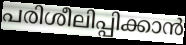
പരിശീലിപ്പിക്കാൻ